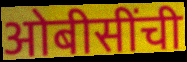
ओबीसींची